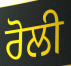
ਰੋਲੀ